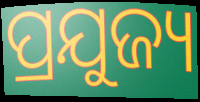
ପ୍ରଯୁଜ୍ୟ